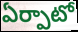
ఏర్పాటో